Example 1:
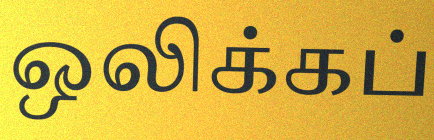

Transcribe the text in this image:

ஒலிக்கப்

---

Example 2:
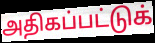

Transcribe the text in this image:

அதிகப்பட்டுக்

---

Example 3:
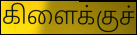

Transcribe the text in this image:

கிளைக்குச்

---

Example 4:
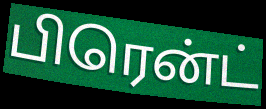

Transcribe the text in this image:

பிரென்ட்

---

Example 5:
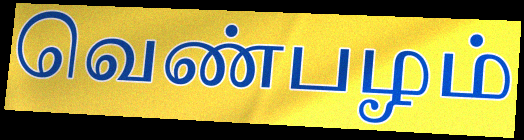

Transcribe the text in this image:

வெண்பழம்